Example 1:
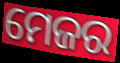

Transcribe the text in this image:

ମେଜର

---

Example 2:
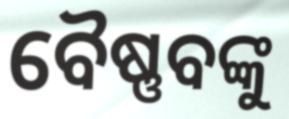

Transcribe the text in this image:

ବୈଷ୍ଣବଙ୍କୁ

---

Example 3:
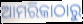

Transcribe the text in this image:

ଆମରିକାଠାରୁ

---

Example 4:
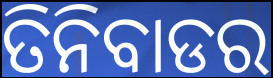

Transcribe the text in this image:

ତିନିବାଡର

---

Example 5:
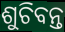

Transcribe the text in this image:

ଶୁଚିବନ୍ତ